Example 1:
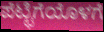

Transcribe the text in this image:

ಪೆಟ್ಟಿಗೆಯೊಳಗೆ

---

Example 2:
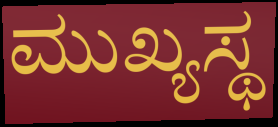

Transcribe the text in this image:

ಮುಖ್ಯಸ್ಥ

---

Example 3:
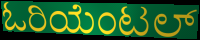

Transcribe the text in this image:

ಓರಿಯೆಂಟಲ್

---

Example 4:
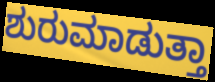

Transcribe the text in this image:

ಶುರುಮಾಡುತ್ತಾ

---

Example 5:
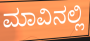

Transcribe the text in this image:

ಮಾವಿನಲ್ಲಿ